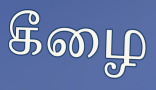
கீழை